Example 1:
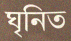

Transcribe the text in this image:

ঘৃনিত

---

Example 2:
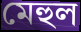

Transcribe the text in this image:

মেহুল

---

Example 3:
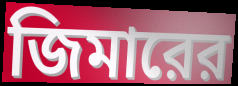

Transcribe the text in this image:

জিমারের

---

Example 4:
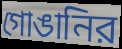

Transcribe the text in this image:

গোঙানির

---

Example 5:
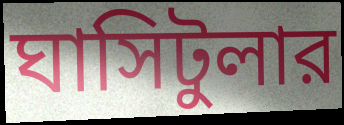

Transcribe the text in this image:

ঘাসিটুলার